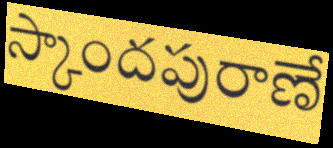
స్కాందపురాణే